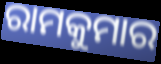
ରାମକୁମାର